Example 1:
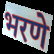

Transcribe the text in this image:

भरणे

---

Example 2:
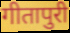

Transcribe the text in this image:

गीतापुरी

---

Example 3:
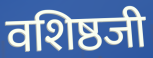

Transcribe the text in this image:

वशिष्ठजी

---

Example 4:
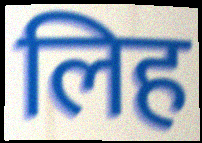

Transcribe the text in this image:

लिह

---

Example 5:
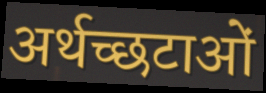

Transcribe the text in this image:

अर्थच्छटाओं